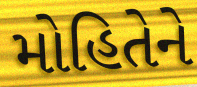
મોહિતેને